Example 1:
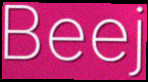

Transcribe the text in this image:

Beej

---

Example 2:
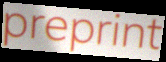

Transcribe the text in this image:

preprint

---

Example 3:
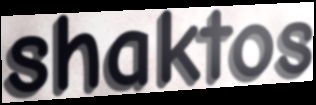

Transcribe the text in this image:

shaktos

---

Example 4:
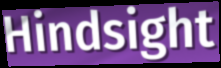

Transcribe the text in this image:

Hindsight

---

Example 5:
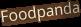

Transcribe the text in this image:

Foodpanda